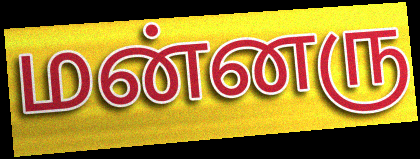
மன்னரு